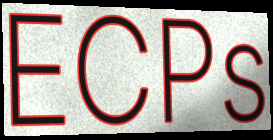
ECPs